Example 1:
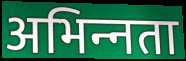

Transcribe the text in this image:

अभिन्नता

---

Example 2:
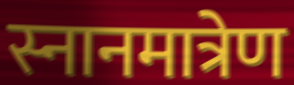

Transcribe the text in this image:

स्नानमात्रेण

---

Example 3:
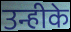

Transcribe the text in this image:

उन्हीके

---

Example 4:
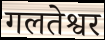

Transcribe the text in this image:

गलतेश्वर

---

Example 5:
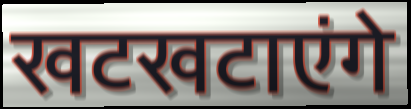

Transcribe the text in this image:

खटखटाएंगे